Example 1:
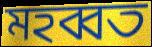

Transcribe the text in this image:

মহব্বত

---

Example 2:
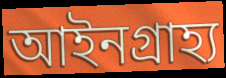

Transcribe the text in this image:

আইনগ্রাহ্য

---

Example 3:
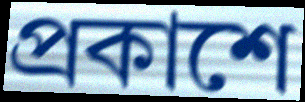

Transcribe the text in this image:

প্রকাশে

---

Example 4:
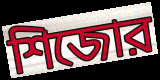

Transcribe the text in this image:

শিজোর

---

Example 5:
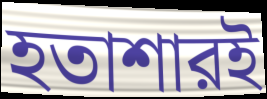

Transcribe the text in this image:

হতাশারই